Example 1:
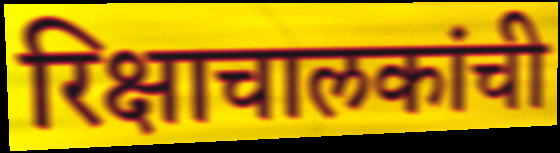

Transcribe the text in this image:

रिक्षाचालकांची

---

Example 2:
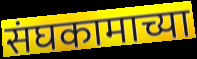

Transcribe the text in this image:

संघकामाच्या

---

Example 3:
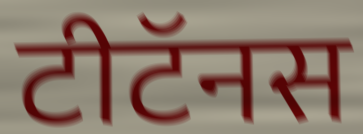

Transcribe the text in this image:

टीटॅनस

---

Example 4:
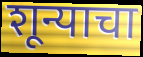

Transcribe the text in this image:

शून्याचा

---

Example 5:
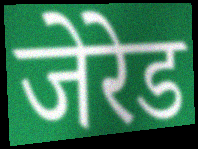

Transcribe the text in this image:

जेरेड